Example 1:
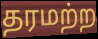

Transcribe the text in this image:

தரமற்ற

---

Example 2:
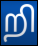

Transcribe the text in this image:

றி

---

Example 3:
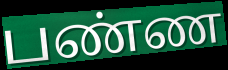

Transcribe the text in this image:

பண்ண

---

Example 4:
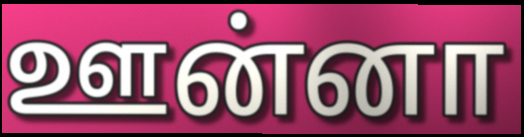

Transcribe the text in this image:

ஊன்னா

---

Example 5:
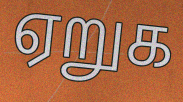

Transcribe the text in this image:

ஏறுக